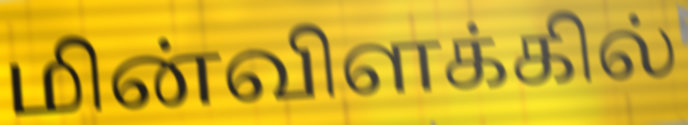
மின்விளக்கில்